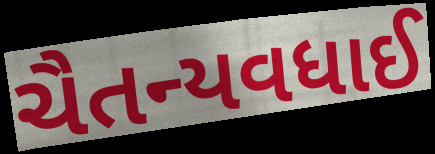
ચૈતન્યવધાઈ